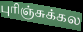
புரிஞ்சுக்கல